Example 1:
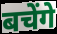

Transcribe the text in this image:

बचेंगे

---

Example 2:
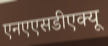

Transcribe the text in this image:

एनएएसडीएक्यू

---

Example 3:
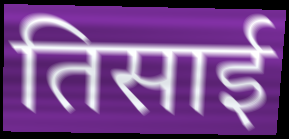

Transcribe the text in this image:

तिसाई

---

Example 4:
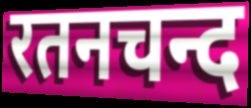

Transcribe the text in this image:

रतनचन्द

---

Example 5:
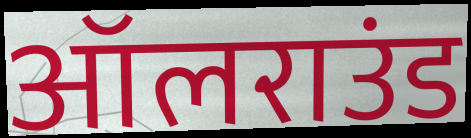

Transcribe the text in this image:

ऑलराउंड